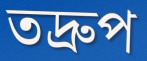
তদ্ৰুপ